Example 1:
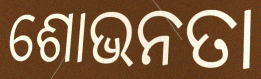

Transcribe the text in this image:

ଶୋଭନତା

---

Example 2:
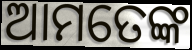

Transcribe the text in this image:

ଆମତେଙ୍କ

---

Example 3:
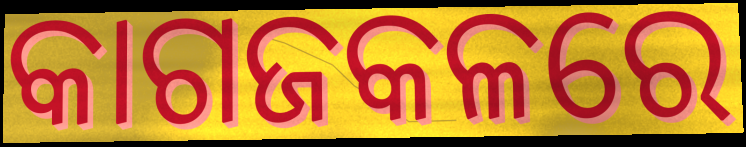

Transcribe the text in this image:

କାଗଜକଳରେ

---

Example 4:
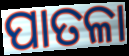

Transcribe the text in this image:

ପାତଳା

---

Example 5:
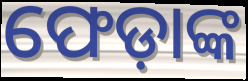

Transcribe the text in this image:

ଫେଡ଼ାଙ୍କ